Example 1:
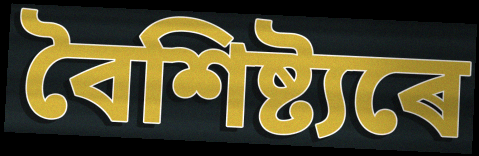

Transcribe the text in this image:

বৈশিষ্ট্যৰে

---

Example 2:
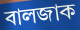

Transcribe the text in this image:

বালজাক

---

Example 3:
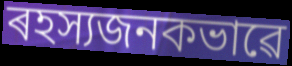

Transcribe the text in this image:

ৰহস্যজনকভাৱে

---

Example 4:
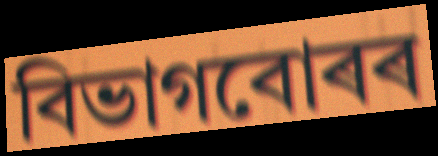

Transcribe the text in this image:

বিভাগবোৰৰ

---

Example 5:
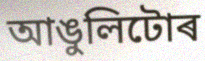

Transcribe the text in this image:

আঙুলিটোৰ